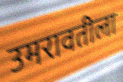
उमरावतीला